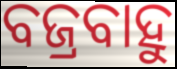
ବଜ୍ରବାହୁ